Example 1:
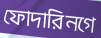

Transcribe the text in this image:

ফোদারিনগে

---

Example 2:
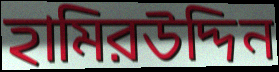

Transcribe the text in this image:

হামিরউদ্দিন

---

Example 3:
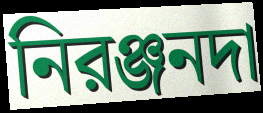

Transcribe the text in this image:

নিরঞ্জনদা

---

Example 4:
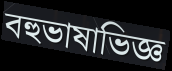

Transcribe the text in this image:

বহুভাষাভিজ্ঞ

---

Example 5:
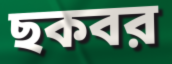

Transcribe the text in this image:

ছকবর